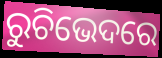
ରୁଚିଭେଦରେ